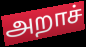
அறாச்